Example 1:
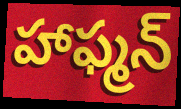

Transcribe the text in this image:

హాఫ్మన్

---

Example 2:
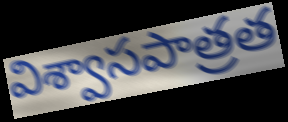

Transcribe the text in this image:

విశ్వాసపాత్రత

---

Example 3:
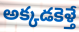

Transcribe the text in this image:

అక్కడకెళ్తే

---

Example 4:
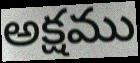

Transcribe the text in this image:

అక్షము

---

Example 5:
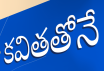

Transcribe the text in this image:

కవితతోనే